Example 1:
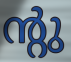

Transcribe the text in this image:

ന്റു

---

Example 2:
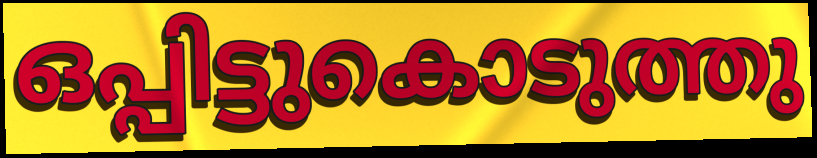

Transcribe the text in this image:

ഒപ്പിട്ടുകൊടുത്തു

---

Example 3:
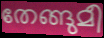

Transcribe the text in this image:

തേങ്ങുമീ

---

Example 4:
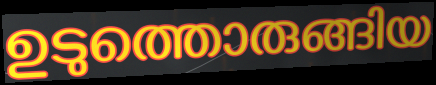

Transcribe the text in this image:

ഉടുത്തൊരുങ്ങിയ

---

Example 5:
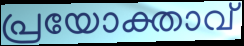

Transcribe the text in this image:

പ്രയോക്താവ്